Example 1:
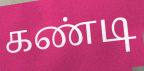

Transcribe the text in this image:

கண்டி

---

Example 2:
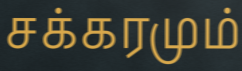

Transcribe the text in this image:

சக்கரமும்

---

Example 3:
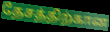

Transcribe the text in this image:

தேசத்திற்கான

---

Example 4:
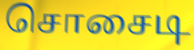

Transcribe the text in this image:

சொசைடி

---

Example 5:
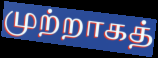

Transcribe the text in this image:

முற்றாகத்